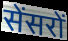
सेंसरों